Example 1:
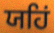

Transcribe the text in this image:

ਯਹਿਂ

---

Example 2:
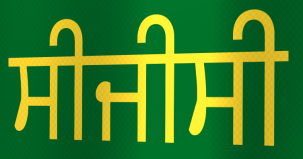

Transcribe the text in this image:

ਸੀਜੀਸੀ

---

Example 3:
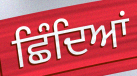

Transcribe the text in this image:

ਛਿੰਦਿਆਂ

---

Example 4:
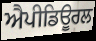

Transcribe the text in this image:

ਐਪੀਡਿਊਰਲ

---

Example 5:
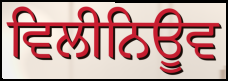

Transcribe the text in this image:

ਵਿਲੀਨਿਊਵ